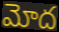
మోద